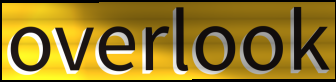
overlook